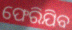
ଫେରିଯିବ